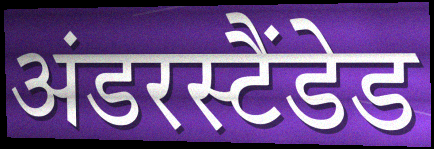
अंडरस्टैंडेड